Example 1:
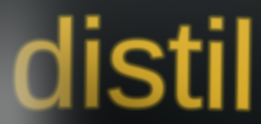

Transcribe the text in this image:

distil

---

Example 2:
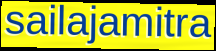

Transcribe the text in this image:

sailajamitra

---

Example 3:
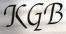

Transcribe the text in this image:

KGB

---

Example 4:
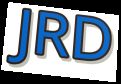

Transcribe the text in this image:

JRD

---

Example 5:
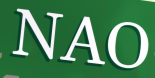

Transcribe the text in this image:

NAO